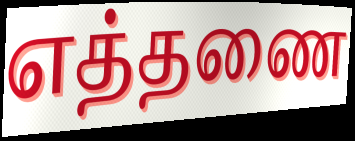
எத்தணை